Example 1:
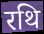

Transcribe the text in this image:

रथि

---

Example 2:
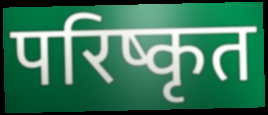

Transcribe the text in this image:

परिष्कृत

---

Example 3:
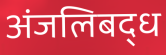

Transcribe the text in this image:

अंजलिबद्ध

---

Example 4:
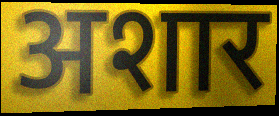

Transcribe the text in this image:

अशार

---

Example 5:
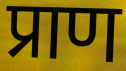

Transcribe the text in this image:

प्राण